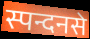
स्पन्दनसे